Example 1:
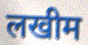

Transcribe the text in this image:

लखीम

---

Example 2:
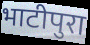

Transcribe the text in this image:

भाटीपुरा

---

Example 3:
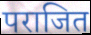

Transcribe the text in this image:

पराजित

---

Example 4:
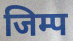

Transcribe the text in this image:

जिम्प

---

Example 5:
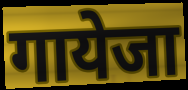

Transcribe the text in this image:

गायेजा